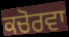
ਕਚੋਰਵਾ